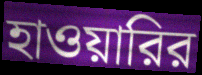
হাওয়ারির